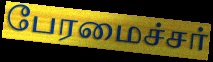
பேரமைச்சர்